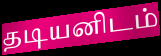
தடியனிடம்